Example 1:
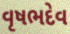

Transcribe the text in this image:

વૃષભદેવ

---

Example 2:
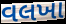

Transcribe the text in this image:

વલખા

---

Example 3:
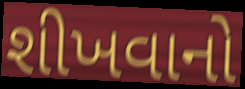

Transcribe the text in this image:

શીખવાનો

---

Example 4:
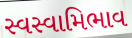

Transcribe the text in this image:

સ્વસ્વામિભાવ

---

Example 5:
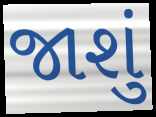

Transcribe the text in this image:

જાશું